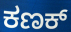
ಕಣಕ್